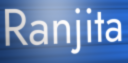
Ranjita